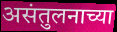
असंतुलनाच्या